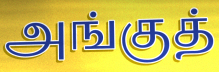
அங்குத்